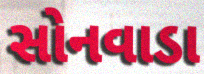
સોનવાડા